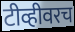
टीव्हीवरच